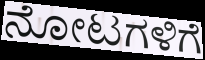
ನೋಟಗಳಿಗೆ